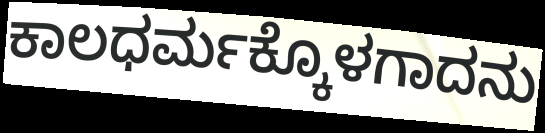
ಕಾಲಧರ್ಮಕ್ಕೊಳಗಾದನು